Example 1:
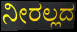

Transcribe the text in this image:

ನೀರಲ್ಲದ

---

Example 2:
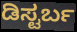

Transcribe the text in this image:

ಡಿಸ್ಟರ್ಬ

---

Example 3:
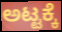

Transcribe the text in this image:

ಅಟ್ಟಕ್ಕೆ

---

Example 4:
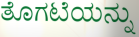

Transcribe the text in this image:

ತೊಗಟೆಯನ್ನು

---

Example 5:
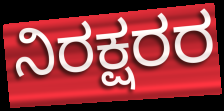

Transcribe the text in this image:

ನಿರಕ್ಷರರ